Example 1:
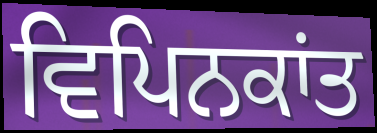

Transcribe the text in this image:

ਵਿਪਿਨਕਾਂਤ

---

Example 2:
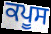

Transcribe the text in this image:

ਕਪੂਸ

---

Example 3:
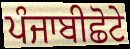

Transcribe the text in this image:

ਪੰਜਾਬੀਛੋਟੇ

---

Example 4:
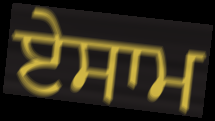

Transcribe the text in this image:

ਏਸਾਮ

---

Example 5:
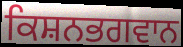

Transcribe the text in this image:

ਕਿਸ਼ਨਭਗਵਾਨ